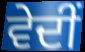
ਵੇਦੀਂ